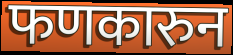
फणकारुन